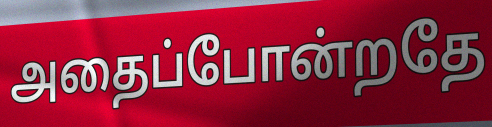
அதைப்போன்றதே